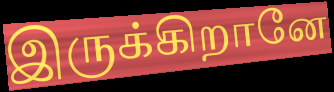
இருக்கிறானே